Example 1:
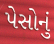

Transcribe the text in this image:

પેસોનું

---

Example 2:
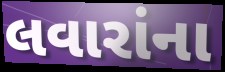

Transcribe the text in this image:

લવારાંના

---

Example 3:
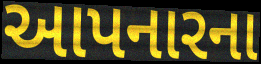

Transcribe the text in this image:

આપનારના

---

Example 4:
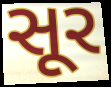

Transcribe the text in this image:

સૂર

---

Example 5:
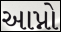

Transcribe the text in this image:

આપ્નો